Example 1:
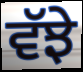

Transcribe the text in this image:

ਵੱਝੇ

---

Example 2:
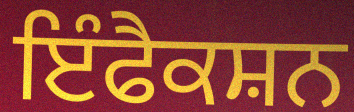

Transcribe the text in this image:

ਇੰਫੈਕਸ਼ਨ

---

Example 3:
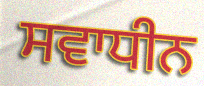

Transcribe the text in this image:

ਸਵਾਧੀਨ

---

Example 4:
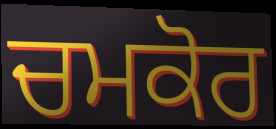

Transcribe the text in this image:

ਚਮਕੋਰ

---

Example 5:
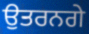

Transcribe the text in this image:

ਉਤਰਨਗੇ